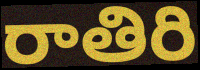
రాతిరి